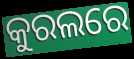
କୁରଲରେ